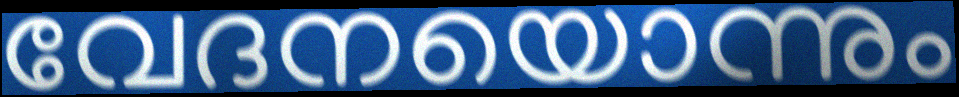
വേദനയൊന്നും